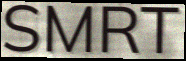
SMRT